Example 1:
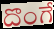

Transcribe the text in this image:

దొంగే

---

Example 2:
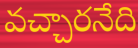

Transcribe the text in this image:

వచ్చారనేది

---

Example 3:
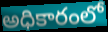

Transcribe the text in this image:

అధికారంలో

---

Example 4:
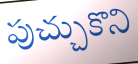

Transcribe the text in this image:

పుచ్చుకొని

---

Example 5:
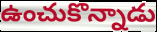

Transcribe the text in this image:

ఉంచుకొన్నాడు